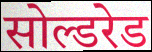
सोल्डरेड